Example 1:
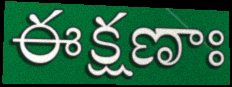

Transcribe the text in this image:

ఈక్షణాః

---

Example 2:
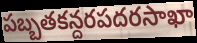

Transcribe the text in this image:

పబ్బతకన్దరపదరసాఖా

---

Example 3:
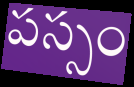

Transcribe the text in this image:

పస్సం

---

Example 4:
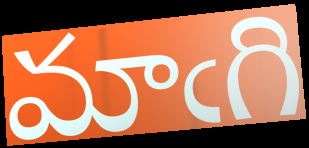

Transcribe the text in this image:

మాఁగి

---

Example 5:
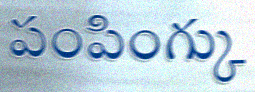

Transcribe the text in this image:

పంపింగ్కు